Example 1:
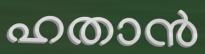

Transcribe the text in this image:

ഹതാൻ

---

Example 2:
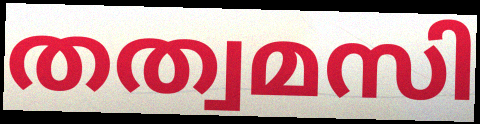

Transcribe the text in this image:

തത്വമസി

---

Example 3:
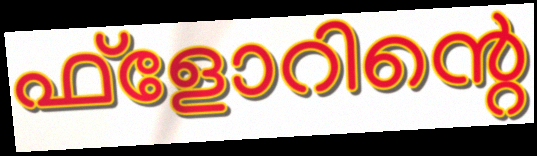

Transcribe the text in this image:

ഫ്ളോറിന്റെ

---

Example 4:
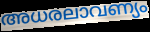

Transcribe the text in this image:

അധരലാവണ്യം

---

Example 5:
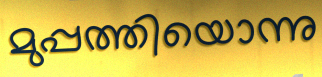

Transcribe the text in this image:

മുപ്പത്തിയൊന്നു